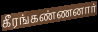
கீரங்கண்ணனார்